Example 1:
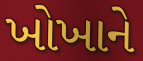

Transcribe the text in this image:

ખોખાને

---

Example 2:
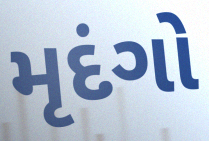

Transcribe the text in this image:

મૃદંગો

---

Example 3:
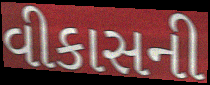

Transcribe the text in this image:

વીકાસની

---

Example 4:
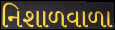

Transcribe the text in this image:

નિશાળવાળા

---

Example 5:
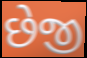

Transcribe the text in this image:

છેજી